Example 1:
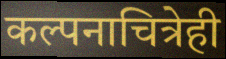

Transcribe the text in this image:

कल्पनाचित्रेही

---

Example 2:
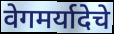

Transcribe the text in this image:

वेगमर्यादेचे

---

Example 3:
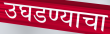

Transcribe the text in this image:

उघडण्याचा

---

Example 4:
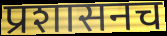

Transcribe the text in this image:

प्रशासनच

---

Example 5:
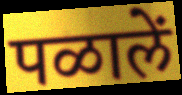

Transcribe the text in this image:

पळालें